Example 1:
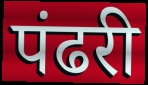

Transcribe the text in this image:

पंढरी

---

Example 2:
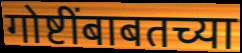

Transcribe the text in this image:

गोष्टींबाबतच्या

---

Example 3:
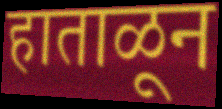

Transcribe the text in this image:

हाताळून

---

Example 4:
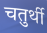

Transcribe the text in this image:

चतुर्थी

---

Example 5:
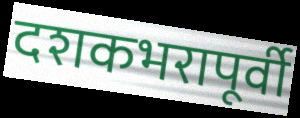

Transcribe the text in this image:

दशकभरापूर्वी